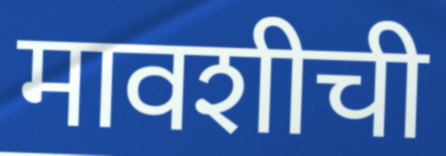
मावशीची